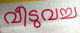
വീടുവച്ച